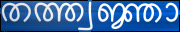
തത്ത്വജ്ഞാ